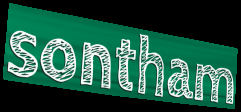
sontham